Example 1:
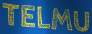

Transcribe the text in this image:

TELMU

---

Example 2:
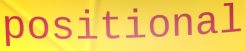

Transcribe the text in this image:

positional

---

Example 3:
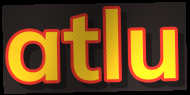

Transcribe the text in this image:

atlu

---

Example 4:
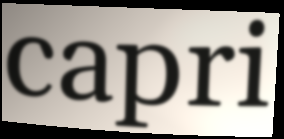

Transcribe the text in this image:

capri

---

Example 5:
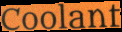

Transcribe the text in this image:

Coolant